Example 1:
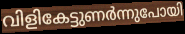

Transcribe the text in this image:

വിളികേട്ടുണർന്നുപോയി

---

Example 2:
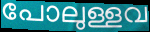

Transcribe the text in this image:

പോലുള്ളവ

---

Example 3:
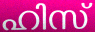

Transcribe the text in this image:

ഹിസ്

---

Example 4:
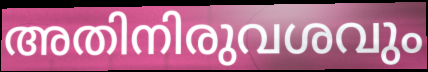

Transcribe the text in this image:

അതിനിരുവശവും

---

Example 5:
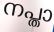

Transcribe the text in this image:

നപ്താ